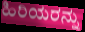
ಹಿರಿಯರನ್ನು